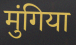
मुंगिया